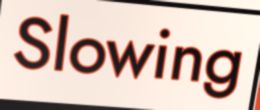
Slowing